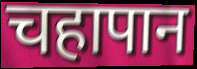
चहापान